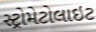
સ્ટ્રોમેટોલાઇટ